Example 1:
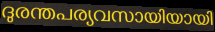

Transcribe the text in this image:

ദുരന്തപര്യവസായിയായി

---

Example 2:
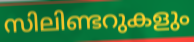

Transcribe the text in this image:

സിലിണ്ടറുകളും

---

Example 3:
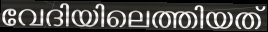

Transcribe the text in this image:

വേദിയിലെത്തിയത്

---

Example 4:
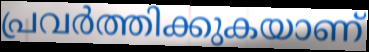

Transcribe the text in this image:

പ്രവർത്തിക്കുകയാണ്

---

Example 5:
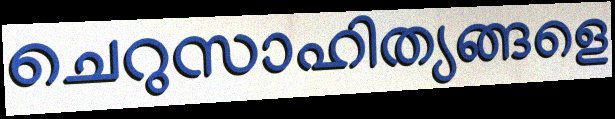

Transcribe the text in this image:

ചെറുസാഹിത്യങ്ങളെ